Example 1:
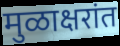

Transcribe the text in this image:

मुळाक्षरांत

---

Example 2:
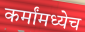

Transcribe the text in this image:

कर्मांमध्येच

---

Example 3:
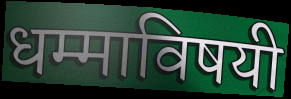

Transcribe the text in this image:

धम्माविषयी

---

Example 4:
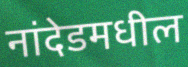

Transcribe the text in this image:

नांदेडमधील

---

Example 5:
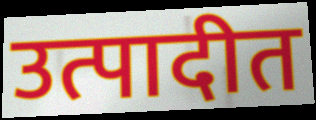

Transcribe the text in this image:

उत्पादीत